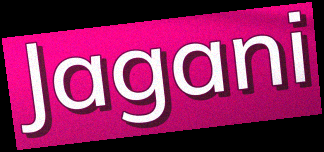
Jagani